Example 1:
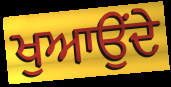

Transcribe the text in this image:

ਖੁਆਉਂਦੇ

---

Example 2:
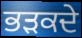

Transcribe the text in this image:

ਭੜਕਦੇ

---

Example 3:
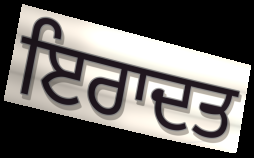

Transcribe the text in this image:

ਇਰਾਦਤ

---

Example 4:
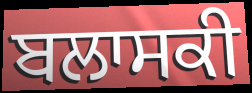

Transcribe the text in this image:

ਬਲਾਸਕੀ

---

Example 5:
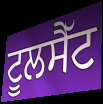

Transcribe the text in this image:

ਟੂਲਸੈੱਟ